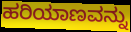
ಹರಿಯಾಣವನ್ನು